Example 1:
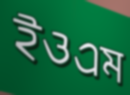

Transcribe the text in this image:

ইওএম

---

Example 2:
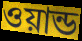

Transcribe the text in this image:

ওয়ান্ড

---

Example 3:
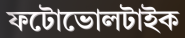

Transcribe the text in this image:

ফটোভোলটাইক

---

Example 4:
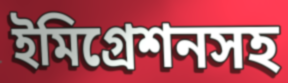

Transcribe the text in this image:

ইমিগ্রেশনসহ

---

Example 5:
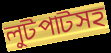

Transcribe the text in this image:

লুটপাটসহ